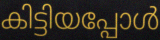
കിട്ടിയപ്പോൾ